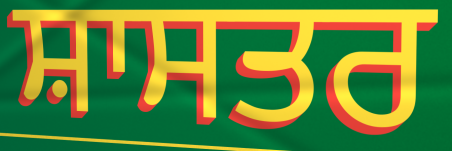
ਸ਼ਾਸਤਰ